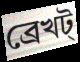
ব্রেখট্